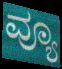
ವ್ಯೂ